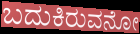
ಬದುಕಿರುವನೋ